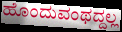
ಹೊಂದುವಂಥದ್ದಲ್ಲ